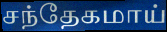
சந்தேகமாய்